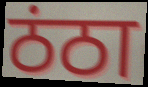
ठंठा